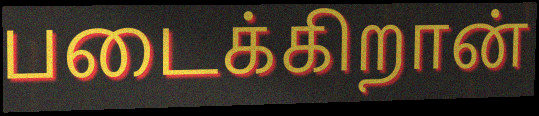
படைக்கிறான்